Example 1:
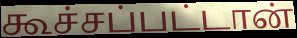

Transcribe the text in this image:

கூச்சப்பட்டான்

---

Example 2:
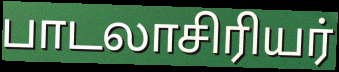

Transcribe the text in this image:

பாடலாசிரியர்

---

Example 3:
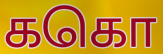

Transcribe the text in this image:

ககொ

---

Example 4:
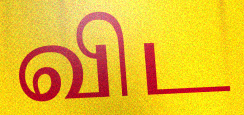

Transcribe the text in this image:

விட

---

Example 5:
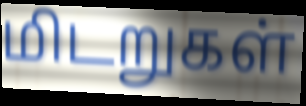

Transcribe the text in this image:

மிடறுகள்